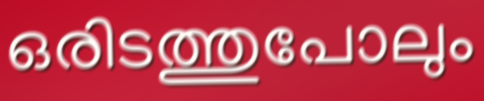
ഒരിടത്തുപോലും